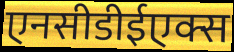
एनसीडीईएक्स